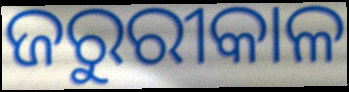
ଜରୁରୀକାଳ